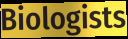
Biologists